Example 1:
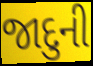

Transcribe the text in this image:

જાદુની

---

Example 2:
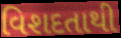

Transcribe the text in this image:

વિશદતાથી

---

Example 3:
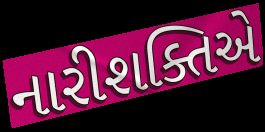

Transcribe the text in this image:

નારીશક્તિએ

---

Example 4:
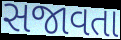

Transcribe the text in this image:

સજાવતા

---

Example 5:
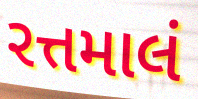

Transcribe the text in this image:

રત્તમાલં